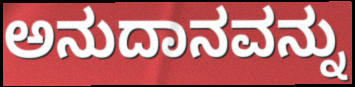
ಅನುದಾನವನ್ನು